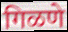
गिळणे